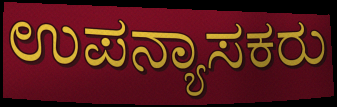
ಉಪನ್ಯಾಸಕರು